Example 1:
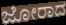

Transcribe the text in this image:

ಜೋರಾದ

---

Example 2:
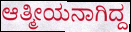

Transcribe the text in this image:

ಆತ್ಮೀಯನಾಗಿದ್ದ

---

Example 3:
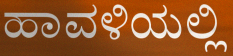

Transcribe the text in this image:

ಹಾವಳಿಯಲ್ಲಿ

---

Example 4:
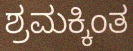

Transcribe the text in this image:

ಶ್ರಮಕ್ಕಿಂತ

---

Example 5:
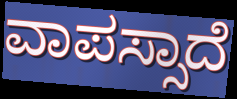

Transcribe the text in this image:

ವಾಪಸ್ಸಾದೆ